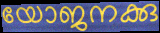
യോജനക്കു